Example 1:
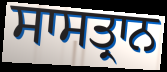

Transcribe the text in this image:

ਸਾਸਤ੍ਰਾਨ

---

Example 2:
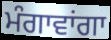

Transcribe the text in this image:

ਮੰਗਾਵਾਂਗਾ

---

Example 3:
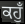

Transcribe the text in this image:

ਕਹੁਁ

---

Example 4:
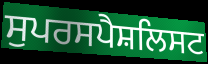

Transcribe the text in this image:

ਸੁਪਰਸਪੈਸ਼ਲਿਸਟ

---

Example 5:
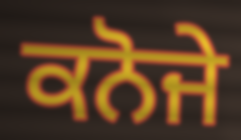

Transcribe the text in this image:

ਕਨੋਜੇ